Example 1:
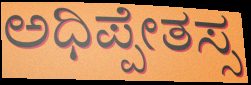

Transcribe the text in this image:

ಅಧಿಪ್ಪೇತಸ್ಸ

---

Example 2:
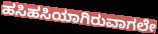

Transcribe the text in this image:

ಹಸಿಹಸಿಯಾಗಿರುವಾಗಲೇ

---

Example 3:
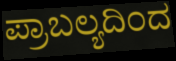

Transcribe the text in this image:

ಪ್ರಾಬಲ್ಯದಿಂದ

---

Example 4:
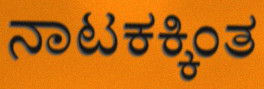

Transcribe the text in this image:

ನಾಟಕಕ್ಕಿಂತ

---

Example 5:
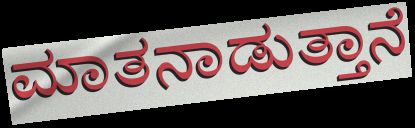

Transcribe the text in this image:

ಮಾತನಾಡುತ್ತಾನೆ